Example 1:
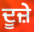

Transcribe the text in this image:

ਦੂਜ਼ੇ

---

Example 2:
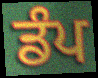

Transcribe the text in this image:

ਡੰਪ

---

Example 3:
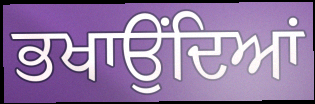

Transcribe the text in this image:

ਭਖਾਉਂਦਿਆਂ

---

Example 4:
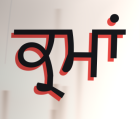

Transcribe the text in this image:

ਕ੍ਰਮਾਂ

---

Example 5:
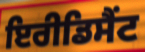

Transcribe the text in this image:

ਇਰੀਡਿਸੈਂਟ